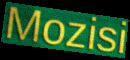
Mozisi